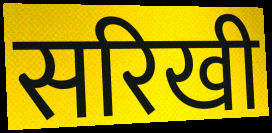
सरिखी